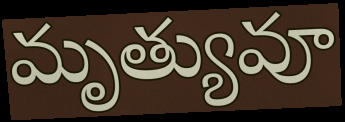
మృత్యువూ